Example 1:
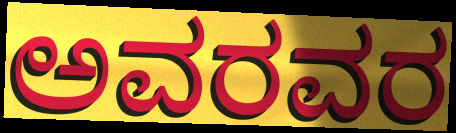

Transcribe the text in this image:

ಅವರವರ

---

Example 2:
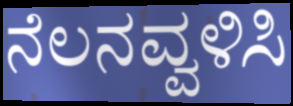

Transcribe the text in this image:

ನೆಲನವ್ವಳಿಸಿ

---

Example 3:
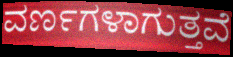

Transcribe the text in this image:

ವರ್ಣಗಳಾಗುತ್ತವೆ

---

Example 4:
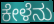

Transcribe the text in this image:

ಕೇಳೆನು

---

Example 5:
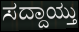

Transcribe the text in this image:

ಸದ್ದಾಯ್ತು